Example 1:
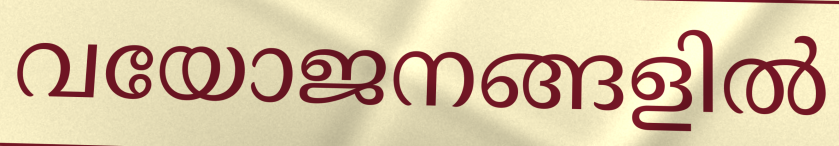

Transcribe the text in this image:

വയോജനങ്ങളിൽ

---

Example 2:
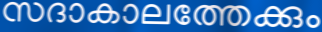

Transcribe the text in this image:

സദാകാലത്തേക്കും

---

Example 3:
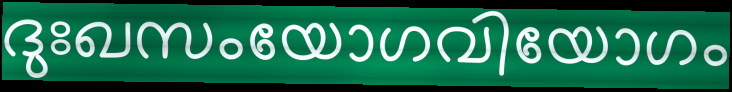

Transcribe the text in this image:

ദുഃഖസംയോഗവിയോഗം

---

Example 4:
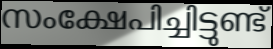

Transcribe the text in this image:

സംക്ഷേപിച്ചിട്ടുണ്ട്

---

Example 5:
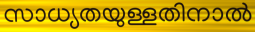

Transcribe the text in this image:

സാധ്യതയുള്ളതിനാൽ